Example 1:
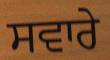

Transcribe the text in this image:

ਸਵਾਰੇ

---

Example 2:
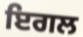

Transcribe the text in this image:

ਇਗਲ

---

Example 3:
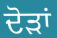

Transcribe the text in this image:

ਦੋੜਾਂ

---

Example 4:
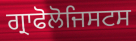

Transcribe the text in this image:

ਗ੍ਰਾਫੋਲੋਜਿਸਟਸ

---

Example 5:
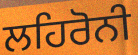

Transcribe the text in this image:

ਲਹਿਰੋਨੀ